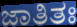
ಜಾತಿತಃ